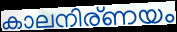
കാലനിര്ണയം